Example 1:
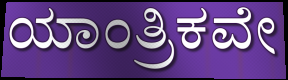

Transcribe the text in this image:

ಯಾಂತ್ರಿಕವೇ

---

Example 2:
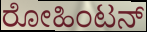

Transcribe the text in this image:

ರೋಹಿಂಟನ್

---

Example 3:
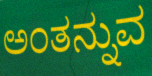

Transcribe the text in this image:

ಅಂತನ್ನುವ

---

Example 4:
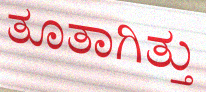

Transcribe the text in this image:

ತೂತಾಗಿತ್ತು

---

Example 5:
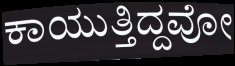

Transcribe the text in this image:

ಕಾಯುತ್ತಿದ್ದವೋ